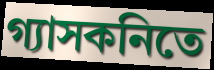
গ্যাসকনিতে